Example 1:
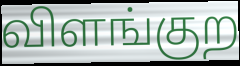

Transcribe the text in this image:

விளங்குற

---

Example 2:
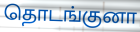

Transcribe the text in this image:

தொடங்குனா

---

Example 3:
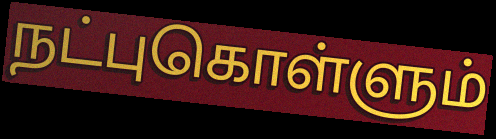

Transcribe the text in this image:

நட்புகொள்ளும்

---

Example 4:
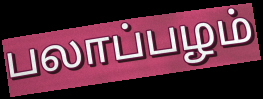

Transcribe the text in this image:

பலாப்பழம்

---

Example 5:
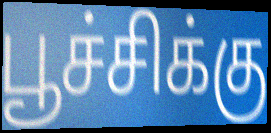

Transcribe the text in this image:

பூச்சிக்கு